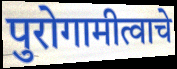
पुरोगामीत्वाचे